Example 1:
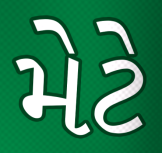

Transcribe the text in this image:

મેટે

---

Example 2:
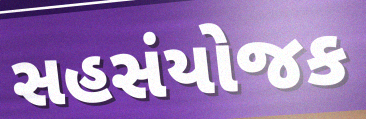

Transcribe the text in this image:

સહસંયોજક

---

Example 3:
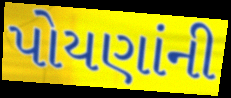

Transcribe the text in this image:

પોયણાંની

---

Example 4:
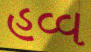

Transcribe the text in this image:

હવ્વ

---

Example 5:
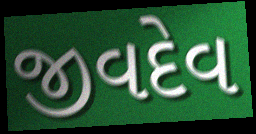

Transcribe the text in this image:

જીવદેવ